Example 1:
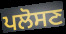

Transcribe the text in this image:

ਪਲੋਸਣ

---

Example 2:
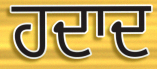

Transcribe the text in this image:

ਹਦਾਦ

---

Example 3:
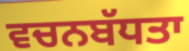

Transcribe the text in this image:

ਵਚਨਬੱਧਤਾ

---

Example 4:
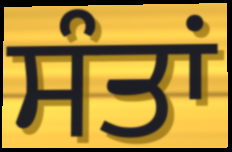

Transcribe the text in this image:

ਸੰਤਾਂ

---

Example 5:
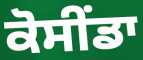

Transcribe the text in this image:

ਕੋਸੀਂਡਾ